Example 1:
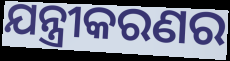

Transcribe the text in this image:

ଯନ୍ତ୍ରୀକରଣର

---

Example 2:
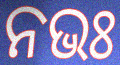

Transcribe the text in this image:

ନଭଃ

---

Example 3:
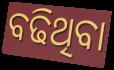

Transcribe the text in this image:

ବଢିଥିବା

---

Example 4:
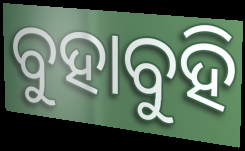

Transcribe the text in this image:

ବୁହାବୁହି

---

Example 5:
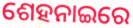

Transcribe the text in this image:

ଶେହନାଇରେ